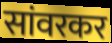
सांवरकर